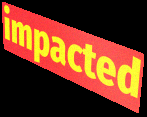
impacted